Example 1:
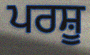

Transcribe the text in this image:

ਪਰਸ਼ੂ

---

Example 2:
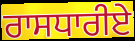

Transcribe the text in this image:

ਰਾਸਧਾਰੀਏ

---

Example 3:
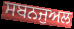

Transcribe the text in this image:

ਸਬਨਜੁਅਲ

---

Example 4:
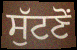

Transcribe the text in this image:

ਸੁੱਟਣੋਂ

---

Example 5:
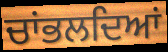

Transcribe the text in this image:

ਚਾਂਭਲਦਿਆਂ